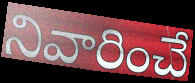
నివారించే